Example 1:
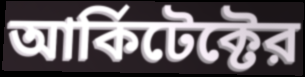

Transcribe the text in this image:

আর্কিটেক্টের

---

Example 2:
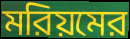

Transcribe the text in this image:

মরিয়মের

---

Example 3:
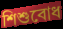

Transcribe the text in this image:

শিশুবোধ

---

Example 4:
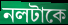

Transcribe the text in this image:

নলটাকে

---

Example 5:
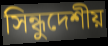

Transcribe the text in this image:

সিন্ধুদেশীয়